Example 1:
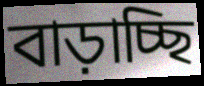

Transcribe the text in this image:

বাড়াচ্ছি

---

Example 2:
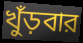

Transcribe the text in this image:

খুঁড়বার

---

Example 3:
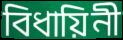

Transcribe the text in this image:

বিধায়িনী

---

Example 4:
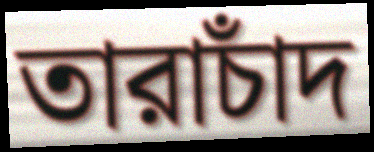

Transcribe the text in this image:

তারাচাঁদ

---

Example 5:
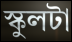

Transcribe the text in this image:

স্কুলটা